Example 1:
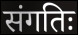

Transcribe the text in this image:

संगतिः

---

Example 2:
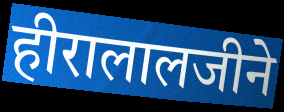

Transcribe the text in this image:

हीरालालजीने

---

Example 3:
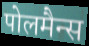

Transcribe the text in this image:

पोलमैन्स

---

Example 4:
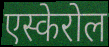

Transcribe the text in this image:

एस्केरोल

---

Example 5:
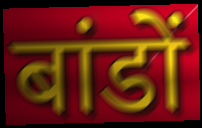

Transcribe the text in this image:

बांडों